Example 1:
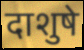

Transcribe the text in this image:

दाशुषे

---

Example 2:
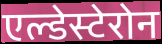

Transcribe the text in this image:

एल्डेस्टेरोन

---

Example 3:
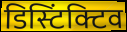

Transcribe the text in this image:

डिस्टिंक्टिव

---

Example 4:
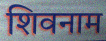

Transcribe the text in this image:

शिवनाम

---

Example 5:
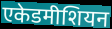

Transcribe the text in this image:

एकेडमीशियन